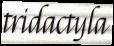
tridactyla